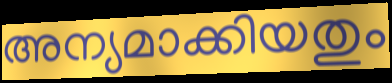
അന്യമാക്കിയതും